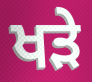
ਖੜੇ